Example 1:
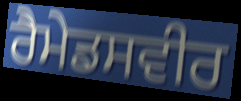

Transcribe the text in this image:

ਰੈਮੇਡਸਵੀਰ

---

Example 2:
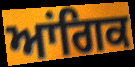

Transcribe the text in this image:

ਆਂਗਿਕ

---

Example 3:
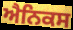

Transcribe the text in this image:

ਐਨਿਕਸ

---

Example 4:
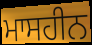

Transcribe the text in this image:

ਮਾਸਹੀਨ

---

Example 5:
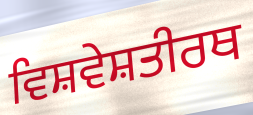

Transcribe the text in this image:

ਵਿਸ਼ਵੇਸ਼ਤੀਰਥ